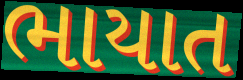
ભાયાત